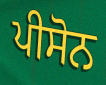
ਪੀਸੋਨ